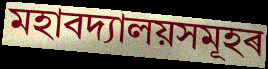
মহাবদ্যালয়সমূহৰ